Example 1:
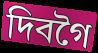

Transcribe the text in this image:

দিবগৈ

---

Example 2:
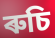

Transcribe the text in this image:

ৰুচি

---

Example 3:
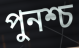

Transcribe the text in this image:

পুনশ্চ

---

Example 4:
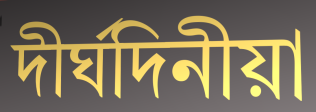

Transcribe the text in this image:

দীৰ্ঘদিনীয়া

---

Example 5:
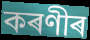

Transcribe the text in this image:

কৰণীৰ